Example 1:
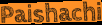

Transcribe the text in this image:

Paishachi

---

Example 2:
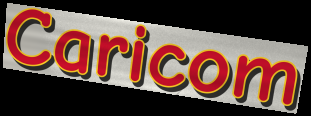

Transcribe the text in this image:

Caricom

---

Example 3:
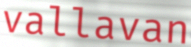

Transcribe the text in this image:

vallavan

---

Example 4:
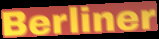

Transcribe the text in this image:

Berliner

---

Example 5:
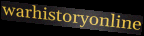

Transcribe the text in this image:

warhistoryonline